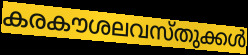
കരകൗശലവസ്തുക്കൾ